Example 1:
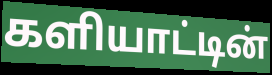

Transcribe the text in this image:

களியாட்டின்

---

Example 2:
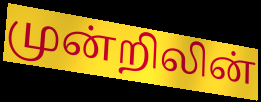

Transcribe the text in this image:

முன்றிலின்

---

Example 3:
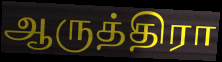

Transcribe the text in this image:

ஆருத்திரா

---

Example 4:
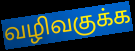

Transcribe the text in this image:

வழிவகுக்க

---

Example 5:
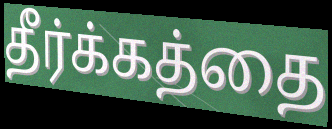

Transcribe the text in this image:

தீர்க்கத்தை